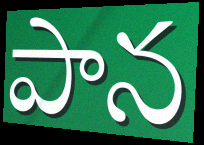
పాన